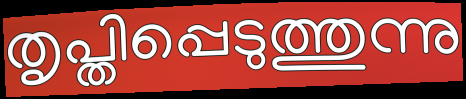
തൃപ്തിപ്പെടുത്തുന്നു